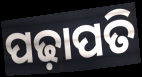
ପଢ଼ାପତି